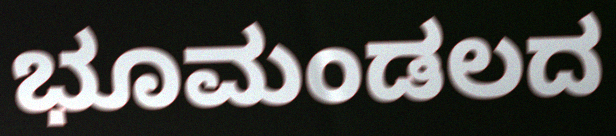
ಭೂಮಂಡಲದ